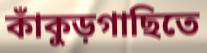
কাঁকুড়গাছিতে